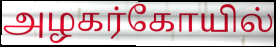
அழகர்கோயில்